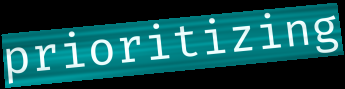
prioritizing